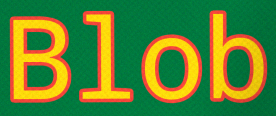
Blob